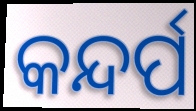
କନ୍ଦର୍ପ